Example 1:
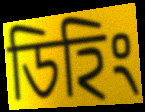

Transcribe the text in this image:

ডিহিং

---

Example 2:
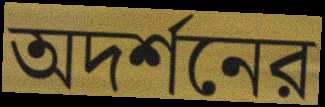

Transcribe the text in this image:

অদর্শনের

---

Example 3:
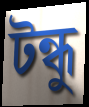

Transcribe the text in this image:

টন্ধু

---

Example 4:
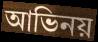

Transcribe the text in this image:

আভিনয়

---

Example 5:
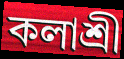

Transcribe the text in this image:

কলাশ্রী